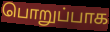
பொறுப்பாக